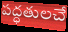
పద్ధతులచే